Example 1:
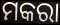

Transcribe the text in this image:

ମକରା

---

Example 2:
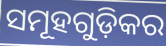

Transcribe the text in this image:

ସମୂହଗୁଡ଼ିକର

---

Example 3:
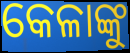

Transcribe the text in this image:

କେଳାଙ୍କୁ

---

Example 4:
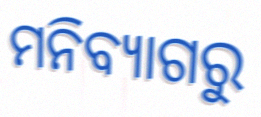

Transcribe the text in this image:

ମନିବ୍ୟାଗରୁ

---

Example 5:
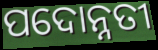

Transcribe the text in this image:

ପଦୋନ୍ନତୀ